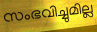
സംഭവിച്ചുമില്ല